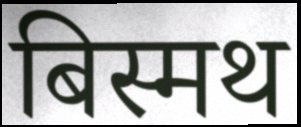
बिस्मथ